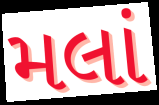
મલાં